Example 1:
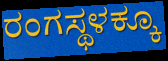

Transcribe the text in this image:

ರಂಗಸ್ಥಳಕ್ಕೂ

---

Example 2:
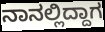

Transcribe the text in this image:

ನಾನಲ್ಲಿದ್ದಾಗ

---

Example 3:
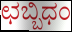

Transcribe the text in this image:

ಛಬ್ಬಿಧಂ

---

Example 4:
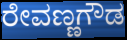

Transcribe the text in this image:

ರೇವಣ್ಣಗೌಡ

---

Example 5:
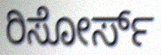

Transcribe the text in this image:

ರಿಸೋರ್ಸ್